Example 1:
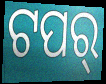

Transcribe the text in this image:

ଟପର୍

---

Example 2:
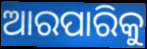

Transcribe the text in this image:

ଆରପାରିକୁ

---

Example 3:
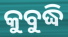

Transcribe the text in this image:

କୁବୁଦ୍ଧି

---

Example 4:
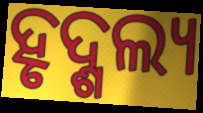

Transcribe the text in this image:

ହୃଦ୍ଶଲ୍ୟ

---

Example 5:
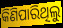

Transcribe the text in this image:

କିଣିପାରିଥିଲୁ